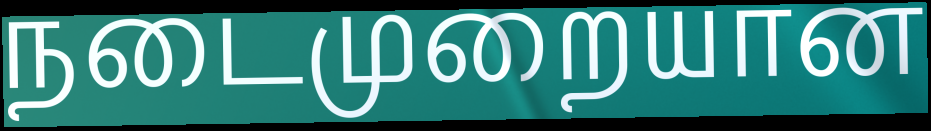
நடைமுறையான